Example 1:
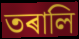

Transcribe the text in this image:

তৰালি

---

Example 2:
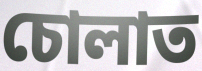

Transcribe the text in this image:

চোলাত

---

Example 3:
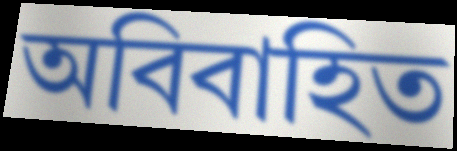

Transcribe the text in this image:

অবিবাহিত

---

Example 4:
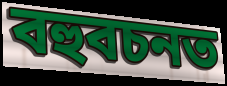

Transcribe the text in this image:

বহুবচনত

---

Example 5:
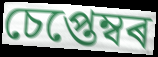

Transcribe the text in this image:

চেপ্তেম্বৰ